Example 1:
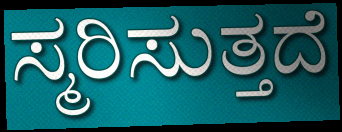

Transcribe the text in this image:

ಸ್ಮರಿಸುತ್ತದೆ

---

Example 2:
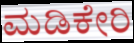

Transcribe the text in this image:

ಮಡಿಕೇರಿ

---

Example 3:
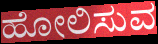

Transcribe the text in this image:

ಹೋಲಿಸುವ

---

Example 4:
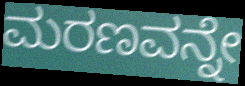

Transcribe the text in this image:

ಮರಣವನ್ನೇ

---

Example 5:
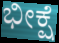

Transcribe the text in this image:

ಭೀಕ್ಷೆ